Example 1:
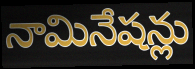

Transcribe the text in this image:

నామినేషన్లు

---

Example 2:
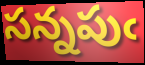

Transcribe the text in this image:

సన్నపుఁ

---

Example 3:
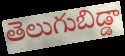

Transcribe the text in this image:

తెలుగుబిడ్డా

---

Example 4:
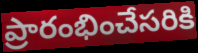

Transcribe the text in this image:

ప్రారంభించేసరికి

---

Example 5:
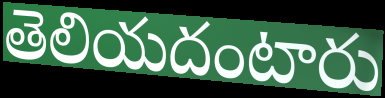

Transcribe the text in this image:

తెలియదంటారు